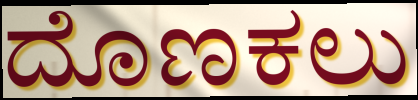
ದೊಣಕಲು